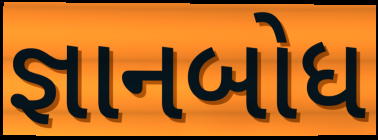
જ્ઞાનબોધ